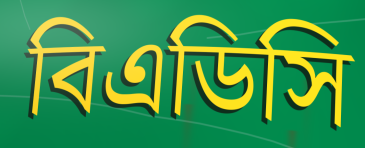
বিএডিসি